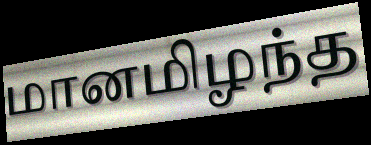
மானமிழந்த